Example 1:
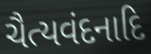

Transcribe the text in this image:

ચૈત્યવંદનાદિ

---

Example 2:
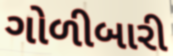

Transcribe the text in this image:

ગોળીબારી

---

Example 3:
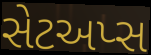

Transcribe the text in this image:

સેટઅપ્સ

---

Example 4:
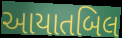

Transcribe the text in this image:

આયાતબિલ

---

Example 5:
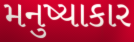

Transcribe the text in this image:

મનુષ્યાકાર